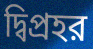
দ্বিপ্রহর